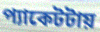
প্যাকেটটায়